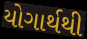
યોગાર્થથી